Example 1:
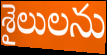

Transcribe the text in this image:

శైలులను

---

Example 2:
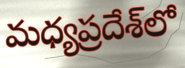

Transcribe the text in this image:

మధ్యప్రదేశ్‌లో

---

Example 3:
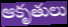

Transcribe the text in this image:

ఆకృతులు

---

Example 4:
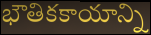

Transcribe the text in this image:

భౌతికకాయాన్ని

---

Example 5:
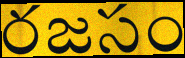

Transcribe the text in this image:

రజసం